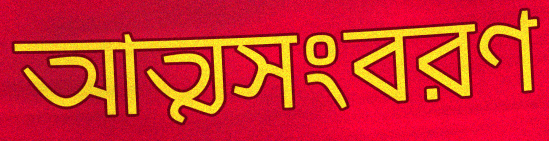
আত্মসংবরণ